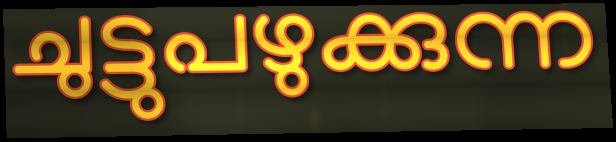
ചുട്ടുപഴുക്കുന്ന